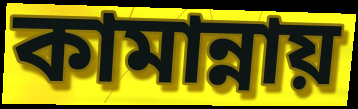
কামান্নায়